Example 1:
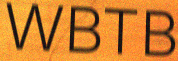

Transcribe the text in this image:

WBTB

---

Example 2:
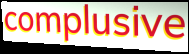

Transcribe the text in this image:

complusive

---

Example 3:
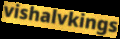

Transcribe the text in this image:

vishalvkings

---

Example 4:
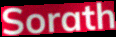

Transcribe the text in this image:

Sorath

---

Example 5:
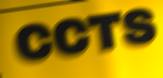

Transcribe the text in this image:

CCTS